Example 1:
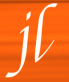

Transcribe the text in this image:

jl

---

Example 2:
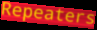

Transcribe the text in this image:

Repeaters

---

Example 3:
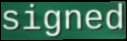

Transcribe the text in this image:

signed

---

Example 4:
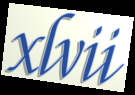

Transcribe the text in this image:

xlvii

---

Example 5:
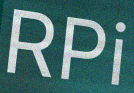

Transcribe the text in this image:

RPi